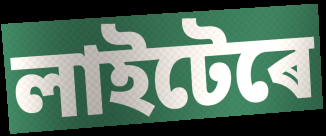
লাইটেৰে